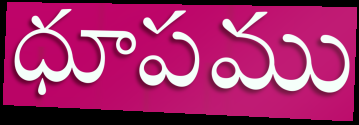
ధూపము